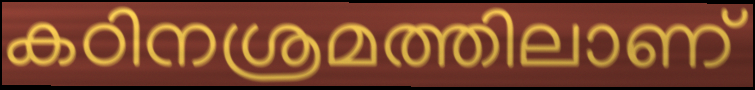
കഠിനശ്രമത്തിലാണ്